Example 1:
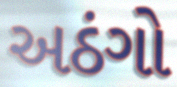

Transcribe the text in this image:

અઠંગો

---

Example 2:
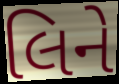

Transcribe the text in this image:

લિને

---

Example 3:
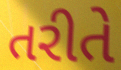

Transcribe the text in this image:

તરીતે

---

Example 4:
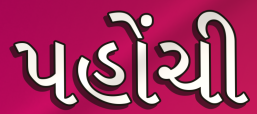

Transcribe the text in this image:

પહોંચી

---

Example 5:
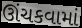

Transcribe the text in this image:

ઊંચકવામાં